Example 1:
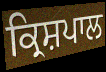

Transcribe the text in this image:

ਕ੍ਰਿਸ਼ਪਾਲ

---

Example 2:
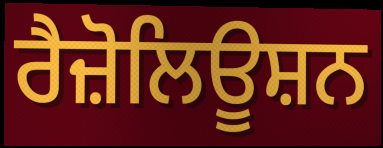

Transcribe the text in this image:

ਰੈਜ਼ੋਲਿਊਸ਼ਨ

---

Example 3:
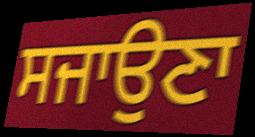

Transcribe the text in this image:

ਸਜਾਉਣਾ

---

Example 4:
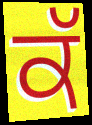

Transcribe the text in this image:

ਕੱ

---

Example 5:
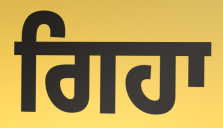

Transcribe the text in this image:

ਗਿਹਾ